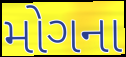
મોગના